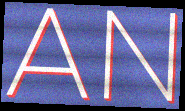
AN